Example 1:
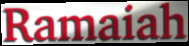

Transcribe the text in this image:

Ramaiah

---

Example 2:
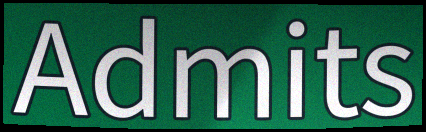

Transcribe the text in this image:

Admits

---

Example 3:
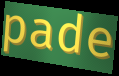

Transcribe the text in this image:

pade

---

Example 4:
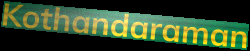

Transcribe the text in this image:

Kothandaraman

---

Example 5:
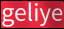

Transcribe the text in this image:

geliye